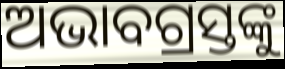
ଅଭାବଗ୍ରସ୍ତଙ୍କୁ